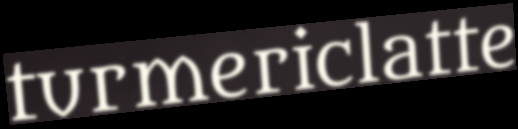
turmericlatte